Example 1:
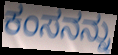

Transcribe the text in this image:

ಕಂಸನನ್ನು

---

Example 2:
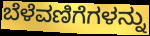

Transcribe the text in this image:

ಬೆಳೆವಣಿಗೆಗಳನ್ನು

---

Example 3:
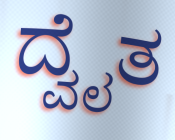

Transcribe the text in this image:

ದ್ವೈತ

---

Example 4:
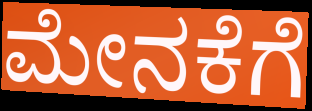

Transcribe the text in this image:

ಮೇನಕೆಗೆ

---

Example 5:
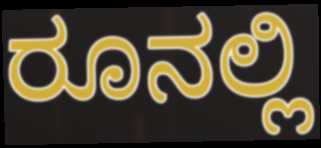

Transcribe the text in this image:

ರೂನಲ್ಲಿ